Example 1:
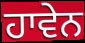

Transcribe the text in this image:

ਹਾਵੇਨ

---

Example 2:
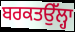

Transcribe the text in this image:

ਬਰਕਤਉੱਲ੍ਹਾ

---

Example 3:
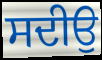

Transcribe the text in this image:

ਸਦੀਉ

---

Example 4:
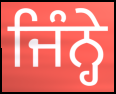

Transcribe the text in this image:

ਜਿੰਨ੍ਹੇ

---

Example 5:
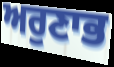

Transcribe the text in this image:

ਅਰੁਣਾਭ